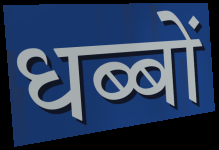
धब्बों